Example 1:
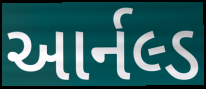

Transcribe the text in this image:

આર્નલ્ડ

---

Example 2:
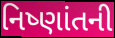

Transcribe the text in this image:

નિષ્ણાંતની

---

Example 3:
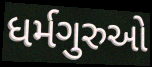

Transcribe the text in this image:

ધર્મગુરુઓ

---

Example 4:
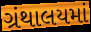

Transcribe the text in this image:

ગ્રંથાલયમાં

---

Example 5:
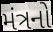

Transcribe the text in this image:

મંત્રનો